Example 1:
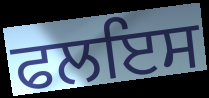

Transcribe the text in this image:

ਫਲਇਸ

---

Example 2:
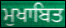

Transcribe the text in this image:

ਮੁਖਾਬਿਤ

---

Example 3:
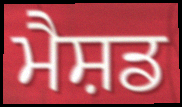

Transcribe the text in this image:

ਮੈਸ਼ਡ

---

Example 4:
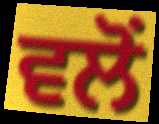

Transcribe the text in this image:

ਵਲੋਂ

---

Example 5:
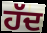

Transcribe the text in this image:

ਹੱਦ